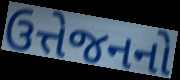
ઉત્તેજનનો